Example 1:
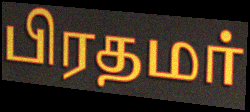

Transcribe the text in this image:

பிரதமர்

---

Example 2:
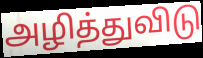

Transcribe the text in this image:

அழித்துவிடு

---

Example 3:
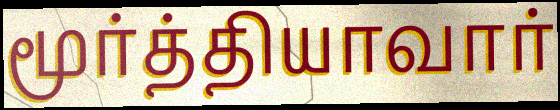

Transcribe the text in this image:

மூர்த்தியாவார்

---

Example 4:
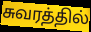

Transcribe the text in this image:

சுவரத்தில்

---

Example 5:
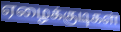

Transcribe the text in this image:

ஏழைக்குடிகள்